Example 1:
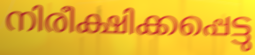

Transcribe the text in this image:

നിരീക്ഷിക്കപ്പെട്ടു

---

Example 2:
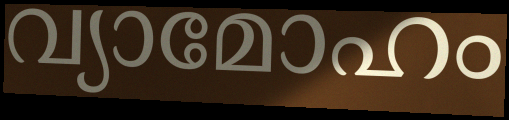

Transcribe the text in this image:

വ്യാമോഹം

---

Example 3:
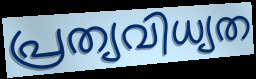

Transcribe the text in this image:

പ്രത്യവിധ്യത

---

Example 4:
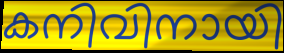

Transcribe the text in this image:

കനിവിനായി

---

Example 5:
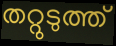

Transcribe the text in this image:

തറ്റുടുത്ത്